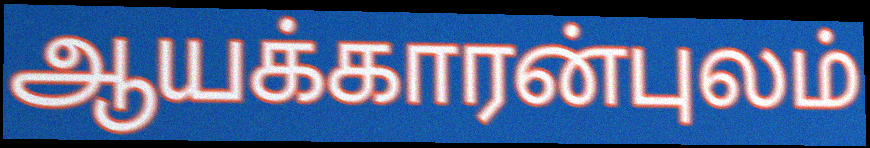
ஆயக்காரன்புலம்